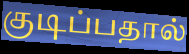
குடிப்பதால்